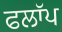
ਫਲਾੱਪ